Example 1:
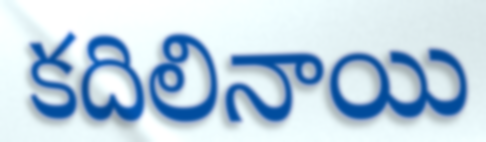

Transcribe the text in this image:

కదిలినాయి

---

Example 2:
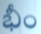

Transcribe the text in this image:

భీం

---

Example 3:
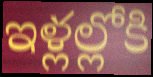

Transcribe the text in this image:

ఇళ్లల్లోకి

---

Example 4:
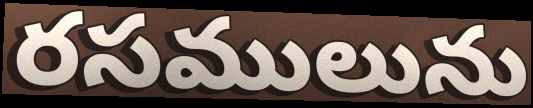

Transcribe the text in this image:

రసములును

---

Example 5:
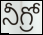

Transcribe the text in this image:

నీగ్రో